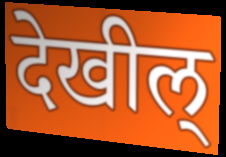
देखील्